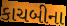
કાચબીના